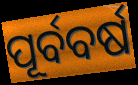
ପୂର୍ବବର୍ଷ